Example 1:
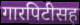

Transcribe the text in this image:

गारपिटीसह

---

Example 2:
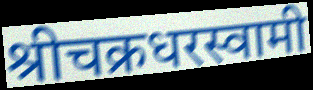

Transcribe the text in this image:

श्रीचक्रधरस्वामी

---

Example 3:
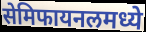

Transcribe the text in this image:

सेमिफायनलमध्ये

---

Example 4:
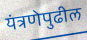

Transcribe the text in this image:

यंत्रणेपुढील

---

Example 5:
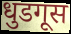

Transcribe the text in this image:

धुडगूस